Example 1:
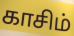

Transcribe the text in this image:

காசிம்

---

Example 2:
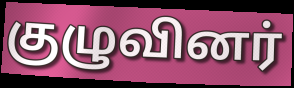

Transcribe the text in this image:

குழுவினர்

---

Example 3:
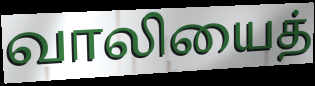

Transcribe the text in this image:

வாலியைத்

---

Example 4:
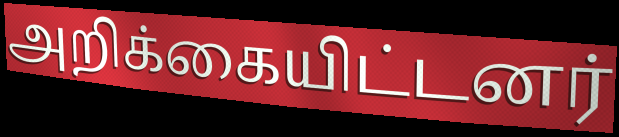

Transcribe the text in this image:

அறிக்கையிட்டனர்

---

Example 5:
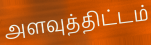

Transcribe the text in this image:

அளவுத்திட்டம்